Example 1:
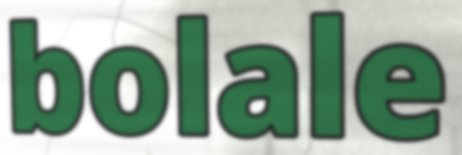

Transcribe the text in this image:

bolale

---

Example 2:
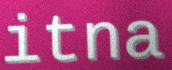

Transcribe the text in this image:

itna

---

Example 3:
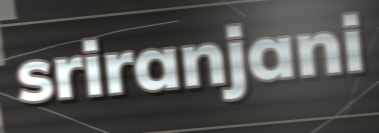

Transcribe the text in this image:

sriranjani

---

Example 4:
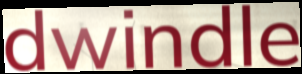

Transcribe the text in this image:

dwindle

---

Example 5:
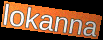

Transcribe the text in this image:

lokanna